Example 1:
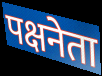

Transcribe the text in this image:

पक्षनेता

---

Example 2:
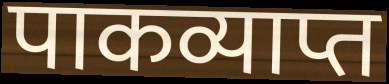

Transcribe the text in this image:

पाकव्याप्त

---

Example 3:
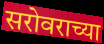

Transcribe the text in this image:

सरोवराच्या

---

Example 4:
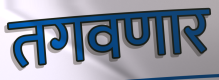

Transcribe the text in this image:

तगवणार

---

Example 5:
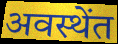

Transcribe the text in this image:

अवस्थेंत